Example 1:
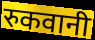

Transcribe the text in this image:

रुकवानी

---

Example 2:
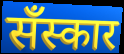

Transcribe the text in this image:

सँस्कार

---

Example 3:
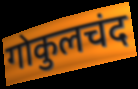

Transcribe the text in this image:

गोकुलचंद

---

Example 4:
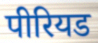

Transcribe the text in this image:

पीरियड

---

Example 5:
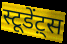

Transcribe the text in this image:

स्टूडेंट़्स